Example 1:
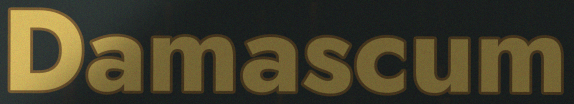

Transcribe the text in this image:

Damascum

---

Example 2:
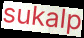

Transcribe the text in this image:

sukalp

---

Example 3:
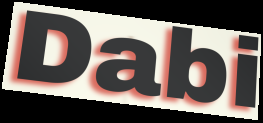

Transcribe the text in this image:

Dabi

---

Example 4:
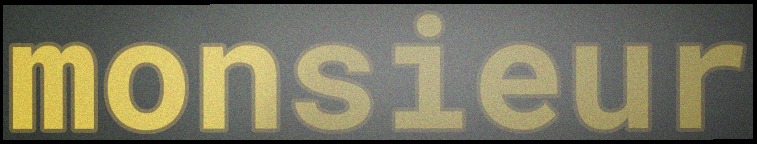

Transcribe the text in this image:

monsieur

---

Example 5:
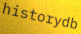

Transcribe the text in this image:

historydb